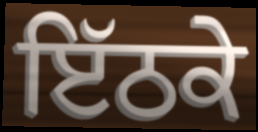
ਇੱਠਕੇ